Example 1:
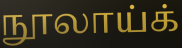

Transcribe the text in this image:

நூலாய்க்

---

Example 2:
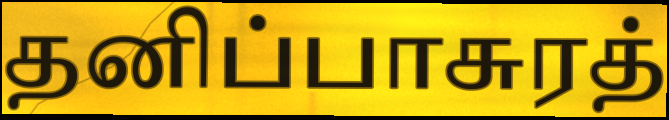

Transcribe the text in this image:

தனிப்பாசுரத்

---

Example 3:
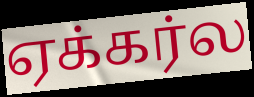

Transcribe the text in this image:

ஏக்கர்ல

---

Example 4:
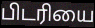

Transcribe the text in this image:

பிடரியை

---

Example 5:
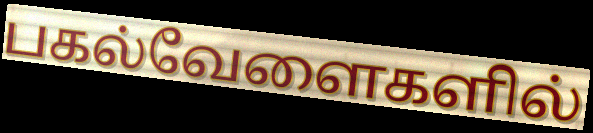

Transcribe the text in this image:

பகல்வேளைகளில்